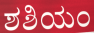
ಶಶಿಯಂ